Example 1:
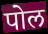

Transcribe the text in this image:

पोल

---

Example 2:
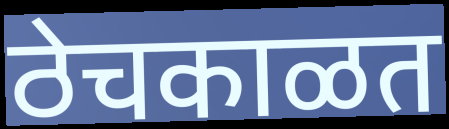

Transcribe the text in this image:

ठेचकाळत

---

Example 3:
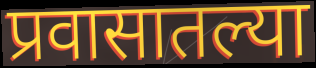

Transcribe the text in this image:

प्रवासातल्या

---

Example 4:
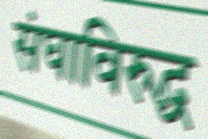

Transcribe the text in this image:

संघाविरुद्ध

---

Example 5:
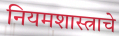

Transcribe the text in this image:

नियमशास्त्राचे